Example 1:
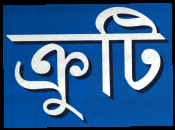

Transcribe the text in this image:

ক্রুটি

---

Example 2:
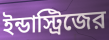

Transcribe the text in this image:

ইন্ডাস্ট্রিজের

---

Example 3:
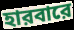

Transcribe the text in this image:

হারবারে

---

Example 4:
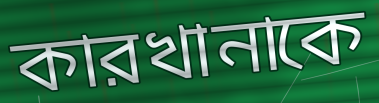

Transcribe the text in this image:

কারখানাকে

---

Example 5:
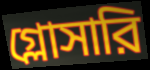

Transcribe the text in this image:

গ্লোসারি